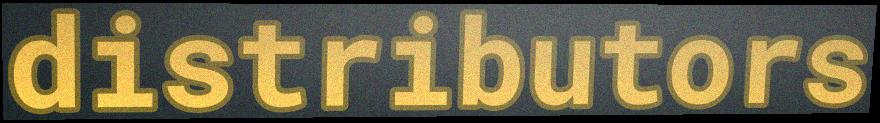
distributors